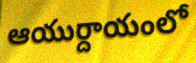
ఆయుర్దాయంలో